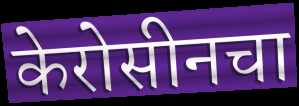
केरोसीनचा